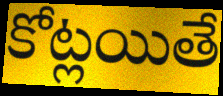
కోట్లయితే